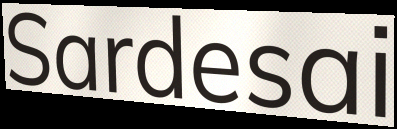
Sardesai